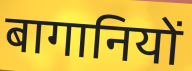
बागानियों